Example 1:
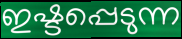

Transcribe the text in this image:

ഇഷ്ടപ്പെടുന്ന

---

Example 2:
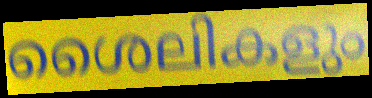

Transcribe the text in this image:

ശൈലികളും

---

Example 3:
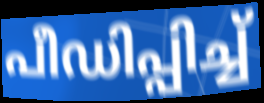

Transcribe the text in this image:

പീഡിപ്പിച്ച്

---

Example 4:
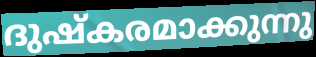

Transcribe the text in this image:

ദുഷ്കരമാക്കുന്നു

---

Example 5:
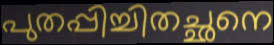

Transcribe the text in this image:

പുതപ്പിച്ചിതച്ഛനെ